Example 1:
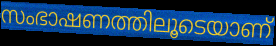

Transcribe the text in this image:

സംഭാഷണത്തിലൂടെയാണ്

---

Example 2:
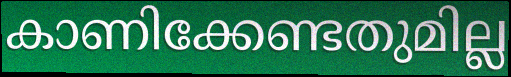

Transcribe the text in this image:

കാണിക്കേണ്ടതുമില്ല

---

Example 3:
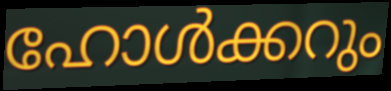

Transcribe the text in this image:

ഹോൾക്കറും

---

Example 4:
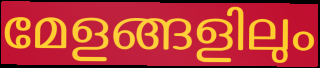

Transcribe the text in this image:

മേളങ്ങളിലും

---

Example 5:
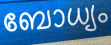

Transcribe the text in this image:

ബോധ്യം